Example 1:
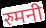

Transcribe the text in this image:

रुमनी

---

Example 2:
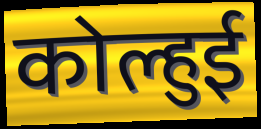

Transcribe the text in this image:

कोल्हुई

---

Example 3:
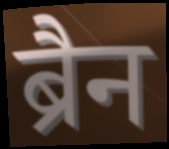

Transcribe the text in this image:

ब्रैन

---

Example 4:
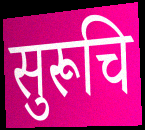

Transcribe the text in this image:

सुरूचि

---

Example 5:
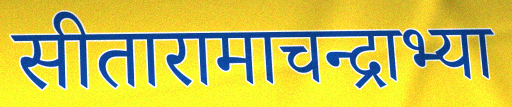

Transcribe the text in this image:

सीतारामाचन्द्राभ्या